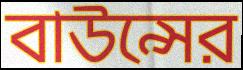
বাউন্সের